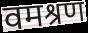
वमश्रण